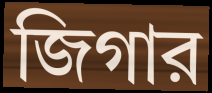
জিগার